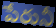
పేరునీ